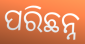
ପରିଛନ୍ନ